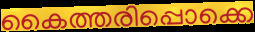
കൈത്തരിപ്പൊക്കെ